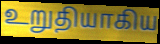
உறுதியாகிய